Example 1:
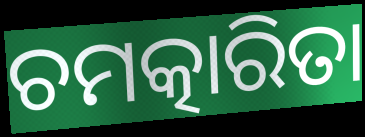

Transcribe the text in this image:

ଚମତ୍କାରିତା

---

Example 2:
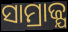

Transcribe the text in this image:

ସାମ୍ରାଜ୍ଯ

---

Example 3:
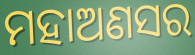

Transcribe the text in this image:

ମହାଅଣସର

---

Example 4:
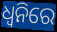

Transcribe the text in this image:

ଧ୍ଵନିରେ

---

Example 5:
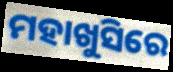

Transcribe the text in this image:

ମହାଖୁସିରେ